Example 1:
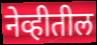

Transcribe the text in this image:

नेव्हीतील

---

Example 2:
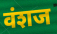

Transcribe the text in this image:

वंशज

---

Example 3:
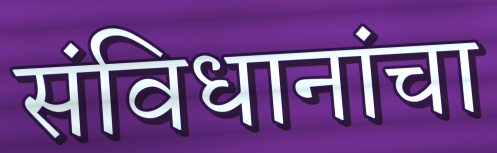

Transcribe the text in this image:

संविधानांचा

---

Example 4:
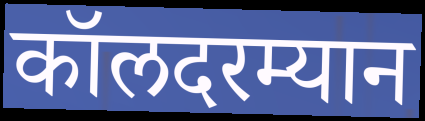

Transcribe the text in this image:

कॉलदरम्यान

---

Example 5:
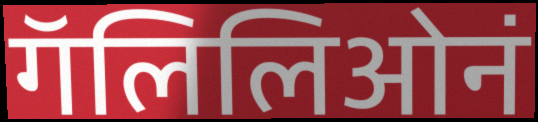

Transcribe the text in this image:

गॅलिलिओनं